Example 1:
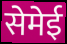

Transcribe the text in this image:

सेमेई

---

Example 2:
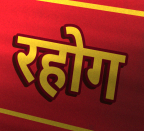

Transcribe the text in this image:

रहोग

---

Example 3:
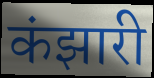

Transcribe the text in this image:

कंझारी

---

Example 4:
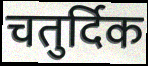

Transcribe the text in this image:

चतुर्दिक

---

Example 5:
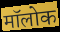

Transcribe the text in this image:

मॉलोक